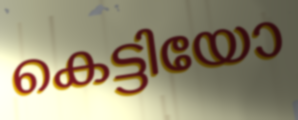
കെട്ടിയോ